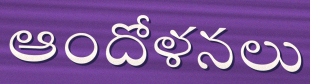
ఆందోళనలు